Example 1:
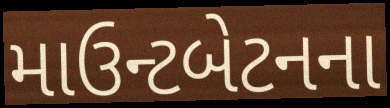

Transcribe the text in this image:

માઉન્ટબેટનના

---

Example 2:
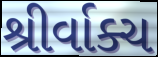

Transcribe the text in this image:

શ્રીર્વાક્ચ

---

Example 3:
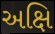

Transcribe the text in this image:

અક્ષિ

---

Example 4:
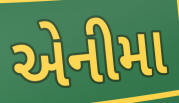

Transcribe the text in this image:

એનીમા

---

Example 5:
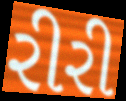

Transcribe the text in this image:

રીરી